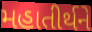
મહાતીર્થને